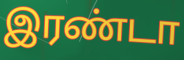
இரண்டா